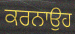
ਕਰਨਾਉਹ